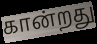
கான்றது